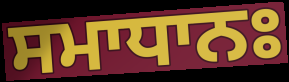
ਸਮਾਧਾਨਃ